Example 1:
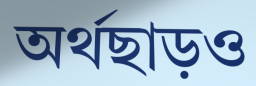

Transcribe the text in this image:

অর্থছাড়ও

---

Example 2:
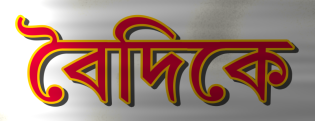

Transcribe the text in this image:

বৈদিকে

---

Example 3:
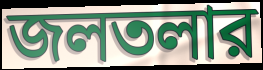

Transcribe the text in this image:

জলতলার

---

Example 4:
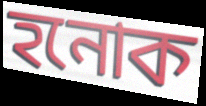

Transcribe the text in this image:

হনোক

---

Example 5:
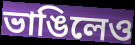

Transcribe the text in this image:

ভাঙিলেও